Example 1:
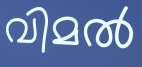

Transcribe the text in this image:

വിമൽ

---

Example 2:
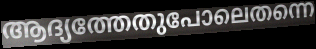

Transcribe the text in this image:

ആദ്യത്തേതുപോലെതന്നെ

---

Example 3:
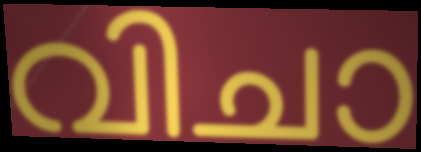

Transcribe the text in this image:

വിചാ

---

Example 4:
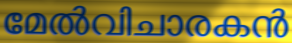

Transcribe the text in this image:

മേൽവിചാരകൻ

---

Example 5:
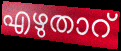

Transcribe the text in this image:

എഴുതാറ്